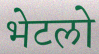
भेटलो